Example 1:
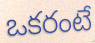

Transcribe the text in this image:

ఒకరంటే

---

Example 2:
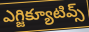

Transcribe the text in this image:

ఎగ్జిక్యూటివ్స్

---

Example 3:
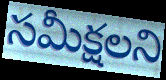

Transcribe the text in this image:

సమీక్షలని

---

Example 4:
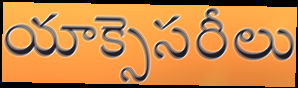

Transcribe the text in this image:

యాక్సెసరీలు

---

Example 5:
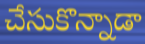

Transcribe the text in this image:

చేసుకొన్నాడా